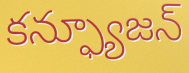
కన్ఫ్యూజన్